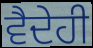
ਵੈਦੇਹੀ